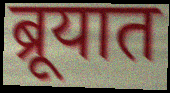
ब्रूयात